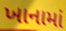
ખાનામાં